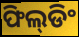
ଫିଲ୍‌ଡିଂ